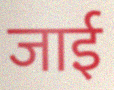
जाई